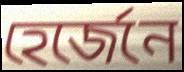
হেৰ্জেনে